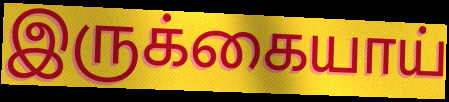
இருக்கையாய்